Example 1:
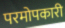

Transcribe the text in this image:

परमोपकारी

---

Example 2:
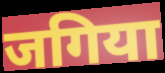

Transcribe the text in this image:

जगिया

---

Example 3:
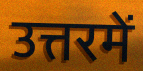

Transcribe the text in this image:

उत्तरमें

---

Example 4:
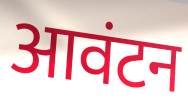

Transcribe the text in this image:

आवंटन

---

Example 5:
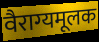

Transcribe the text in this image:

वैराग्यमूलक